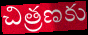
చిత్రణకు